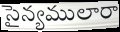
సైన్యములారా